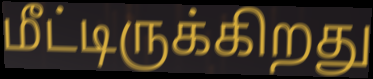
மீட்டிருக்கிறது